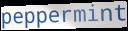
peppermint